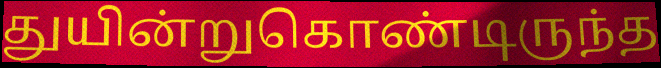
துயின்றுகொண்டிருந்த